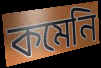
কমেনি